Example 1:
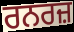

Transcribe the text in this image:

ਰਨਰਜ਼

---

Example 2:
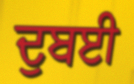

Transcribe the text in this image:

ਦੁਬਈ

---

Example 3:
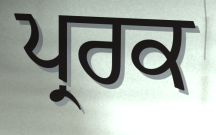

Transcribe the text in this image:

ਪ੍ਰਰਕ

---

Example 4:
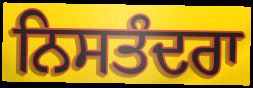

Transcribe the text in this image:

ਨਿਸਤੰਦਰਾ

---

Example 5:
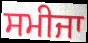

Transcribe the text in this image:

ਸਮੀਜਾ